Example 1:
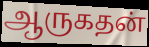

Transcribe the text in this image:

ஆருகதன்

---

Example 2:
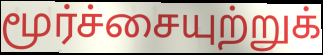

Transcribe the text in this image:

மூர்ச்சையுற்றுக்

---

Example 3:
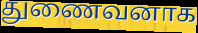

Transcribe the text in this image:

துணைவனாக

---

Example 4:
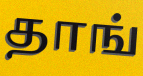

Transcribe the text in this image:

தாங்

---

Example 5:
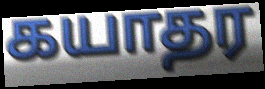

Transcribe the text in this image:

கயாதர